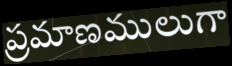
ప్రమాణములుగా